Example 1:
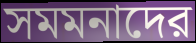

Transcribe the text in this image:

সমমনাদের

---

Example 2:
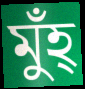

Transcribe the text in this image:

মুঁহ্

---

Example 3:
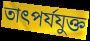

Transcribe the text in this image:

তাৎপর্যযুক্ত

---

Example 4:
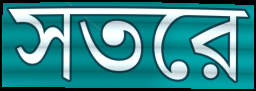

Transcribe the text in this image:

সতরে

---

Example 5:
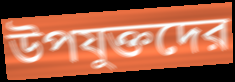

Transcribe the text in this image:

উপযুক্তদের